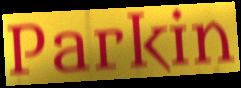
Parkin